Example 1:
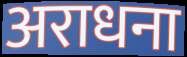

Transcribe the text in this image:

अराधना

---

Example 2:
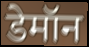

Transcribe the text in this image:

डेमॉन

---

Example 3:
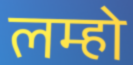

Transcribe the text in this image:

लम्हो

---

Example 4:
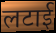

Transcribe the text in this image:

लटाई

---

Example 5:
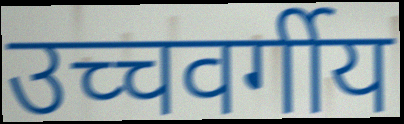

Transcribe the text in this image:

उच्चवर्गीय